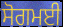
ਸੋਗਮਈ